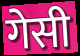
गेसी